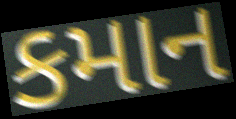
કમાન